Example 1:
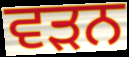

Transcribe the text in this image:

ਵਡ਼ਨ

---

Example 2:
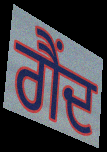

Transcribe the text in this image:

ਗੈਂਦ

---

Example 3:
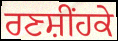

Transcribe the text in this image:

ਰਣਸ਼ੀਂਹਕੇ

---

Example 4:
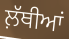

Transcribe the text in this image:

ਲ਼ੱਥੀਆਂ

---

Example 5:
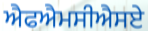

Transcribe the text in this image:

ਐਫਐਮਸੀਐਸਏ